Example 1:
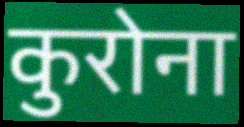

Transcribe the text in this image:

कुरोना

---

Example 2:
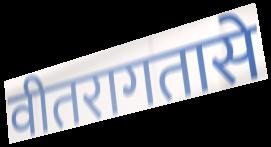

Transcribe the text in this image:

वीतरागतासे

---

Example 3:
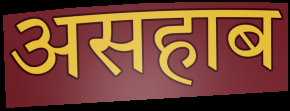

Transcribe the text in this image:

असहाब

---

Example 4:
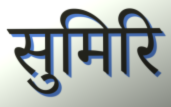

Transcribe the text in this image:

सुमिरि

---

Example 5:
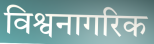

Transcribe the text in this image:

विश्वनागरिक